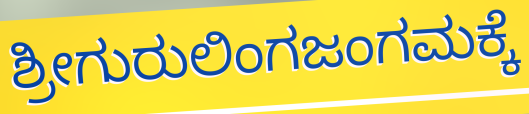
ಶ್ರೀಗುರುಲಿಂಗಜಂಗಮಕ್ಕೆ